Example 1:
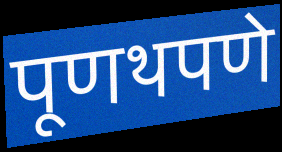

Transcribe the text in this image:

पूणथपणे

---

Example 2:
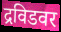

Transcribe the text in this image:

द्रविडवर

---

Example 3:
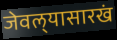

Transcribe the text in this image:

जेवल्यासारखं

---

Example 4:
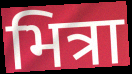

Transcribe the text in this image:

भित्रा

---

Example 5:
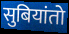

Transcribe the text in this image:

सुबियांतो